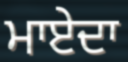
ਮਾਏਦਾ